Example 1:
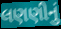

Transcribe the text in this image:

લણણીનું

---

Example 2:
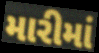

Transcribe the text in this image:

મારીમાં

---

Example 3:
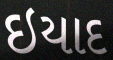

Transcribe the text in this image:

ઇયાદ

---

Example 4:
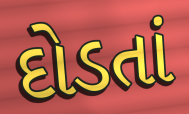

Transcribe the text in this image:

દોડતાં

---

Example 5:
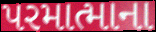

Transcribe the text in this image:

પરમાત્માના